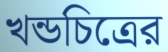
খন্ডচিত্রের